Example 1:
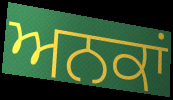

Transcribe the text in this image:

ਅਨਕਾਂ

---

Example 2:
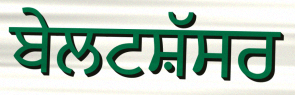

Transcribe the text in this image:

ਬੇਲਟਸ਼ੱਸਰ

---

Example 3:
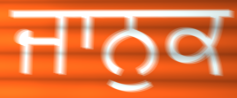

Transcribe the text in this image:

ਜਾਨੁਕ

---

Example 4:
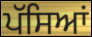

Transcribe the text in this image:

ਪੱਸਿਆਂ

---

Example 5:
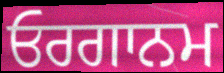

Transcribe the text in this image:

ਓਰਗਾਨਮ